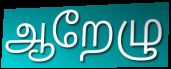
ஆறேழு